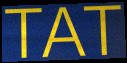
TAT